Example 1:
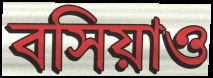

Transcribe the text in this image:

বসিয়াও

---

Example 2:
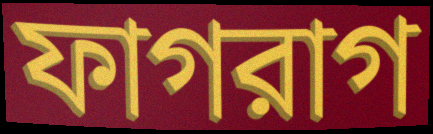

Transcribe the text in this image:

ফাগরাগ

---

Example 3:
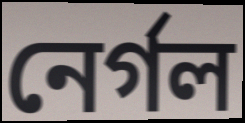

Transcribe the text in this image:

নের্গল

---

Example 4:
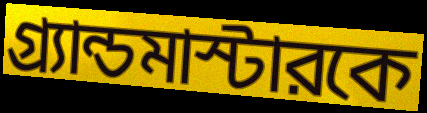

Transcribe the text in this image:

গ্র্যান্ডমাস্টারকে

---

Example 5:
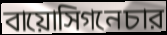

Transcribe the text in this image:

বায়োসিগনেচার